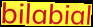
bilabial